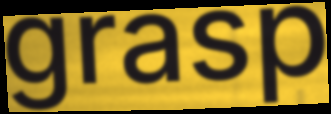
grasp